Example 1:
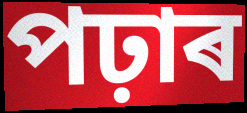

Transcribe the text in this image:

পঢ়াৰ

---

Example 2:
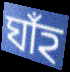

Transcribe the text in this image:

ঘাঁহ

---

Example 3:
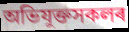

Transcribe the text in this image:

অভিযুক্তসকলৰ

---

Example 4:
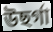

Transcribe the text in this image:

উছৰ্গা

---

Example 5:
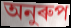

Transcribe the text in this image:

অনুৰুপ